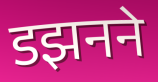
डझनने